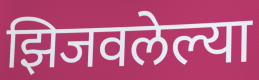
झिजवलेल्या